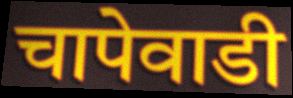
चापेवाडी